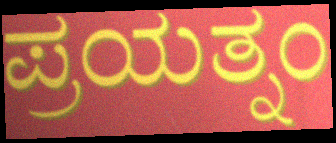
ಪ್ರಯತ್ನಂ